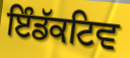
ਇੰਡੱਕਟਿਵ